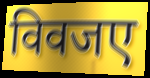
विवजए